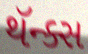
થૅન્ક્સ